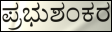
ಪ್ರಭುಶಂಕರ